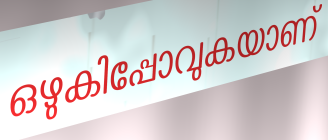
ഒഴുകിപ്പോവുകയാണ്